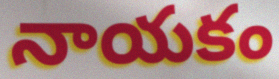
నాయకం